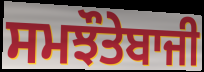
ਸਮਝੌਤੇਬਾਜੀ